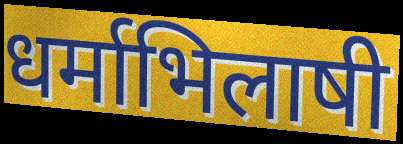
धर्माभिलाषी